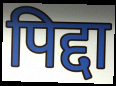
पिद्दा